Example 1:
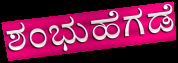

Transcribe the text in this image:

ಶಂಭುಹೆಗಡೆ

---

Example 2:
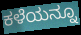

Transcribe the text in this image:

ಕಳೆಯನ್ನೂ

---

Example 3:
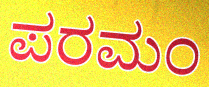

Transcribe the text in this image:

ಪರಮಂ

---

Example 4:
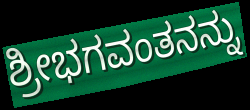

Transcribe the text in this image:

ಶ್ರೀಭಗವಂತನನ್ನು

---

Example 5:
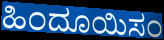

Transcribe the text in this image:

ಹಿಂದೂಯಿಸಂ